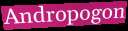
Andropogon